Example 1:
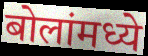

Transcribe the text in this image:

बोलांमध्ये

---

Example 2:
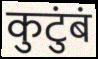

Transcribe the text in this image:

कुटुंबं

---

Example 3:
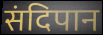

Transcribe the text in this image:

संदिपान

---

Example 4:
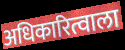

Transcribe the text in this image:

अधिकारित्वाला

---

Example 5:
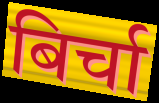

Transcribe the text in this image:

बिर्चा